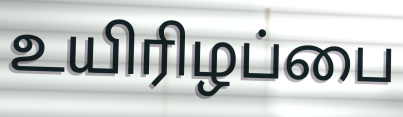
உயிரிழப்பை